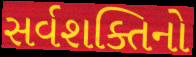
સર્વશક્તિનો